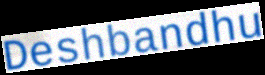
Deshbandhu